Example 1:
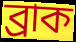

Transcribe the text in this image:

ব্রাক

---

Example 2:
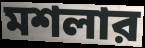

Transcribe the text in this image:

মশলার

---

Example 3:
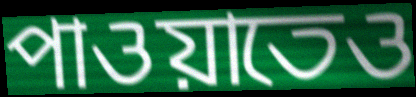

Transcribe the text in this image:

পাওয়াতেও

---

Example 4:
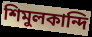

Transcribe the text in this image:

শিমুলকান্দি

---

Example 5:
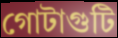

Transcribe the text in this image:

গোটাগুটি